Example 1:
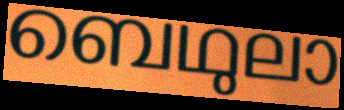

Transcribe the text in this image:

ബെഥുലാ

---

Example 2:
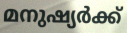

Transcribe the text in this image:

മനുഷ്യർക്ക്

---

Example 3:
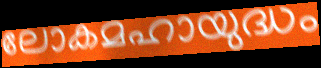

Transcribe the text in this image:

ലോകമഹായുദ്ധം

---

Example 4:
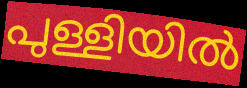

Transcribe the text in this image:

പുള്ളിയിൽ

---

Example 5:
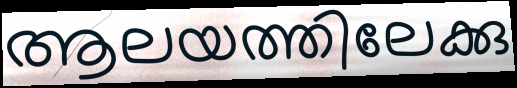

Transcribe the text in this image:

ആലയത്തിലേക്കു